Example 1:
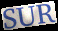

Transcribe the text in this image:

SUR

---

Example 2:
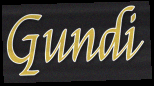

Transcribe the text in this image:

Gundi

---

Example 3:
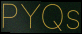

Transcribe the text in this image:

PYQs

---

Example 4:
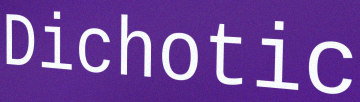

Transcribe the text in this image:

Dichotic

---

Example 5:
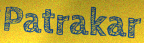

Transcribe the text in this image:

Patrakar